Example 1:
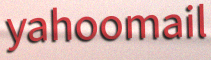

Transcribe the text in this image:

yahoomail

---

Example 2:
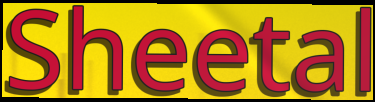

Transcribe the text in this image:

Sheetal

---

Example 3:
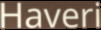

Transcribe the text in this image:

Haveri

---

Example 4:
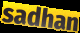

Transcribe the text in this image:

sadhan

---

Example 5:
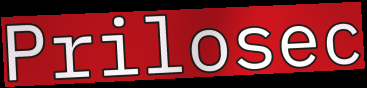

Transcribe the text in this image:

Prilosec